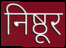
निष्ठूर